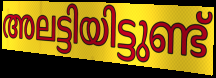
അലട്ടിയിട്ടുണ്ട്